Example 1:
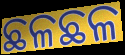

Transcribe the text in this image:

ଛଳଛଳ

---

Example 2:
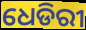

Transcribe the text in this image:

ଧେଡିରୀ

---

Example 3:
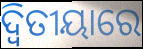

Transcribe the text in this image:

ଦ୍ଵିତୀୟାରେ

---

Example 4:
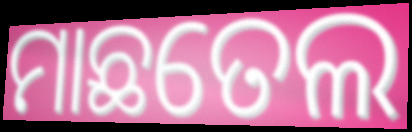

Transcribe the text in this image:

ମାଛତେଲ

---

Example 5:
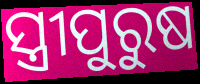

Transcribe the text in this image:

ସ୍ତ୍ରୀପୁରୁଷ